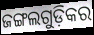
ଜଙ୍ଗଲଗୁଡ଼ିକର